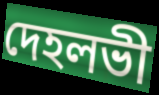
দেহলভী